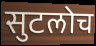
सुटलोच